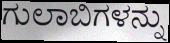
ಗುಲಾಬಿಗಳನ್ನು